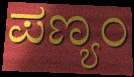
ಪಣ್ಯಂ